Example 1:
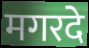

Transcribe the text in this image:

मगरदे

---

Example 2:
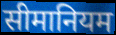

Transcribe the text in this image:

सीमानियम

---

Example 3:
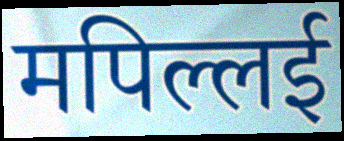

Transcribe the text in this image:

मपिल्लई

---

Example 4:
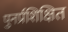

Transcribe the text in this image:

पुनर्प्रशिक्षित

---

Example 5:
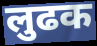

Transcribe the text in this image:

लुढक